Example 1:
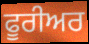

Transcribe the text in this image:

ਫੂਰੀਅਰ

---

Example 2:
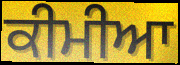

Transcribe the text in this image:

ਕੀਮੀਆ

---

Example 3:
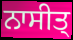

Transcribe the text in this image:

ਨਾਸੀਤ੍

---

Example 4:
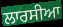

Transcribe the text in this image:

ਲਾਰਸੀਆ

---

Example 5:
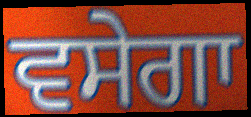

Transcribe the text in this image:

ਵਸੇਗਾ